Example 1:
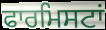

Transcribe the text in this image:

ਫਾਰਮਿਸਟਾਂ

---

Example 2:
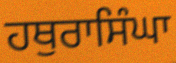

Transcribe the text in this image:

ਹਥੁਰਾਸਿੰਘਾ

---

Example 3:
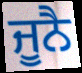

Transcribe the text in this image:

ਜੂਨੈ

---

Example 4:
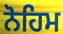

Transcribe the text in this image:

ਨੋਹਿਮ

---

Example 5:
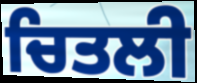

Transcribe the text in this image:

ਚਿਤਲੀ